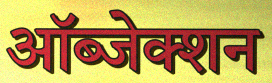
ऑब्‍जेक्‍शन